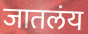
जातलंय